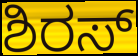
ಶಿರಸ್